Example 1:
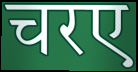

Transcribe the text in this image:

चरए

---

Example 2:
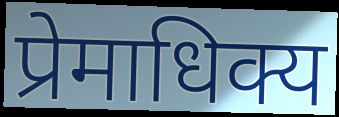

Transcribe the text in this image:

प्रेमाधिक्य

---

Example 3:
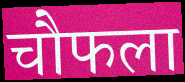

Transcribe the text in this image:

चौफला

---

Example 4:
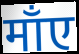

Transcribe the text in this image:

माँए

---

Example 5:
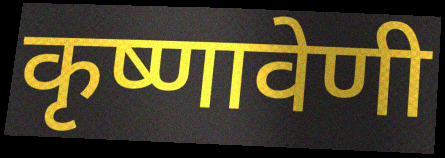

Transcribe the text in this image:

कृष्णावेणी